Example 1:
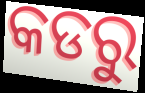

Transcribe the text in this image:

କଡରୁ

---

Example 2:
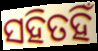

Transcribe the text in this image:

ସହିତହିଁ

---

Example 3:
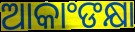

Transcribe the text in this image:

ଆକାଂଙକ୍ଷା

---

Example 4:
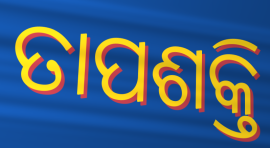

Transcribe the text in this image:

ତାପଶକ୍ତି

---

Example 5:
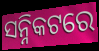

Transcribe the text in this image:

ସନ୍ନିକଟରେ